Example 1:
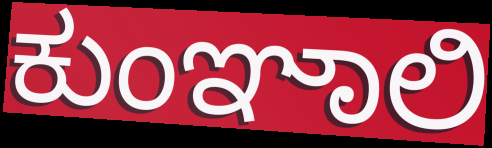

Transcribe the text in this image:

ಕುಂಞಾಲಿ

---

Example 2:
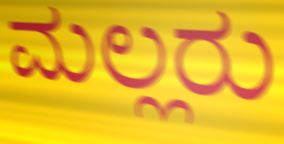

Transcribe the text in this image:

ಮಲ್ಲರು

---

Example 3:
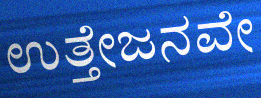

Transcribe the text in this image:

ಉತ್ತೇಜನವೇ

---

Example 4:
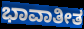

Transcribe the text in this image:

ಭಾವಾತೀತ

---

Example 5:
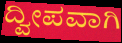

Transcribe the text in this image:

ದ್ವೀಪವಾಗಿ